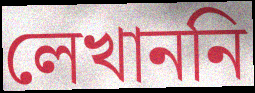
লেখাননি